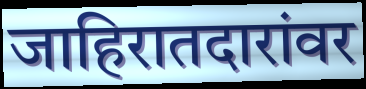
जाहिरातदारांवर